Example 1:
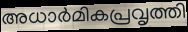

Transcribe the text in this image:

അധാർമികപ്രവൃത്തി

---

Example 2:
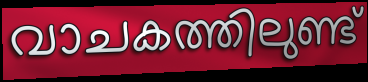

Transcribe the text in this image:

വാചകത്തിലുണ്ട്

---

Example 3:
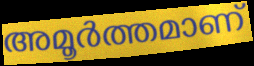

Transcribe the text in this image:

അമൂർത്തമാണ്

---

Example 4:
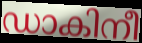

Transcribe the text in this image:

ഡാകിനീ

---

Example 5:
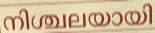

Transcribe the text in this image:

നിശ്ചലയായി